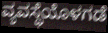
ವ್ಯವಸ್ಥೆಯೊಳಗಡೆ